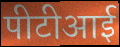
पीटीआई